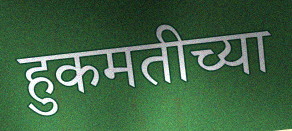
हुकमतीच्या